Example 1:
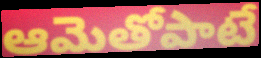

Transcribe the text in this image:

ఆమెతోపాటే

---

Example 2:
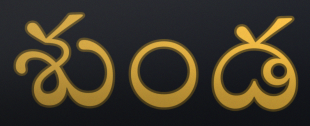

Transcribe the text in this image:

శుండ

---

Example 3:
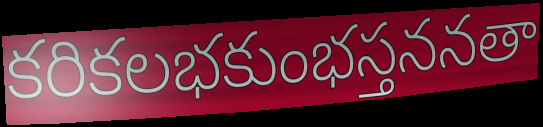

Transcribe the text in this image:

కరికలభకుంభస్తననతా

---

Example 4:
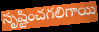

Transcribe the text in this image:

సృష్టించగలిగాయి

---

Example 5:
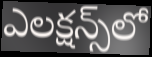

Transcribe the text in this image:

ఎలక్షన్స్‌లో